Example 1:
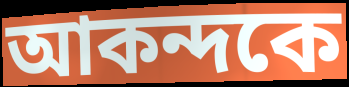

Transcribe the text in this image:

আকন্দকে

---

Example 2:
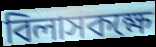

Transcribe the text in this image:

বিলাসকক্ষে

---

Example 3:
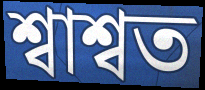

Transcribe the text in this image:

শ্বাশ্বত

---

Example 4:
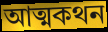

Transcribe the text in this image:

আত্মকথন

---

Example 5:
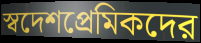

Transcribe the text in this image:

স্বদেশপ্রেমিকদের